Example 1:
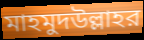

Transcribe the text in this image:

মাহমুদউল্লাহর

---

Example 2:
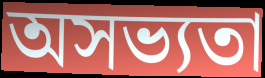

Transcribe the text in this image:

অসভ্যতা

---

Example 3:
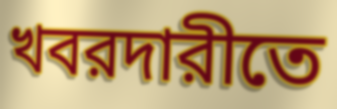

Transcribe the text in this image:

খবরদারীতে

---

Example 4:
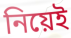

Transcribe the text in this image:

নিয়েই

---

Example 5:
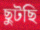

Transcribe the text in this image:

ছুটছি